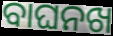
ବାଘନଖ